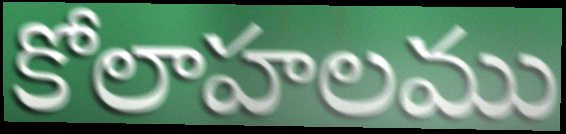
కోలాహలము